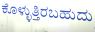
ಕೊಳ್ಳುತ್ತಿರಬಹುದು